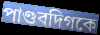
পাণ্ডবদিগকে